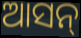
ଆସନ୍